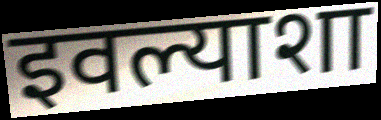
इवल्याशा